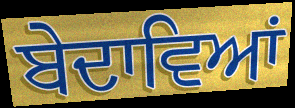
ਬੇਦਾਵਿਆਂ